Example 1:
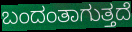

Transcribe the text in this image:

ಬಂದಂತಾಗುತ್ತದೆ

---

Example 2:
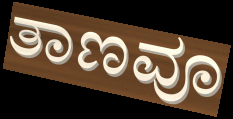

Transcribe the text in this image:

ತಾಣವೂ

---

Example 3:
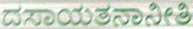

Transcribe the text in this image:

ದಸಾಯತನಾನೀತಿ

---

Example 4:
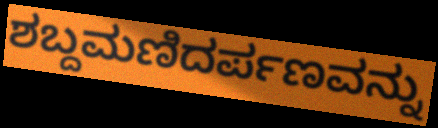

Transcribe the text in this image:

ಶಬ್ದಮಣಿದರ್ಪಣವನ್ನು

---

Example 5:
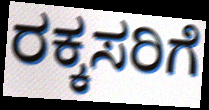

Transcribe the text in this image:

ರಕ್ಕಸರಿಗೆ